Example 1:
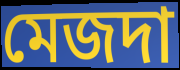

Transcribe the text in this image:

মেজদা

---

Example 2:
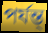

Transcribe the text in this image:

পর্যন্ত্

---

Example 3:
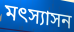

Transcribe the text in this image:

মৎস্যাসন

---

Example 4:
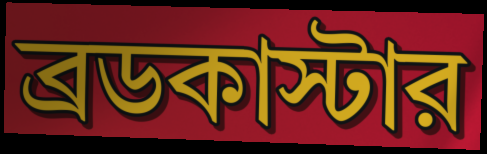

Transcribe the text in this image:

ব্রডকাস্টার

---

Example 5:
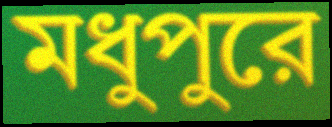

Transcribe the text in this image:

মধুপুরে